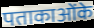
पताकाओंके